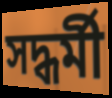
সদ্ধর্মী